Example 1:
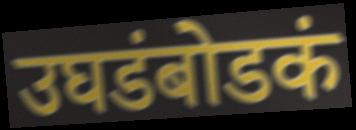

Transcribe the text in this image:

उघडंबोडकं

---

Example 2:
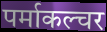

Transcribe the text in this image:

पर्माकल्चर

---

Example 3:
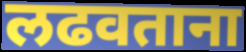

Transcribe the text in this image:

लढवताना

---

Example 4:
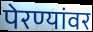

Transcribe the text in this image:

पेरण्यांवर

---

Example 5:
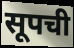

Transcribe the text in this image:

सूपची